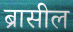
ब्रासील